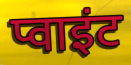
प्वाइंट